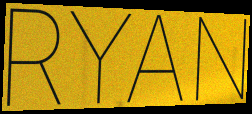
RYAN